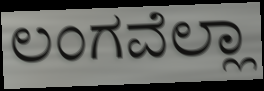
ಲಂಗವೆಲ್ಲಾ